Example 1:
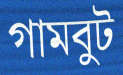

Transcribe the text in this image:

গামবুট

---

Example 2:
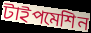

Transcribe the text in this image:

টাইপমেশিন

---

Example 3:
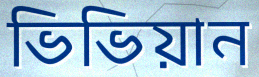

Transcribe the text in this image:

ভিভিয়ান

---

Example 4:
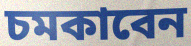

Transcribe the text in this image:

চমকাবেন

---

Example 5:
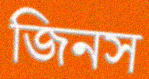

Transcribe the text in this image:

জিনস